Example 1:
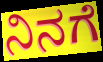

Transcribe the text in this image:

ನಿನಗೆ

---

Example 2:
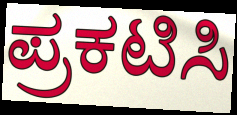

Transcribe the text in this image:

ಪ್ರಕಟಿಸಿ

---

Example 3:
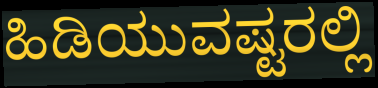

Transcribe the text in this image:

ಹಿಡಿಯುವಷ್ಟರಲ್ಲಿ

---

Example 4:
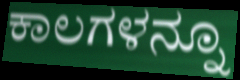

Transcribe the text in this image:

ಕಾಲಗಳನ್ನೂ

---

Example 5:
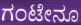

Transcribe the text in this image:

ಗಂಟೇನೂ